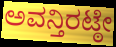
ಅವನ್ತಿರಟ್ಠೇ